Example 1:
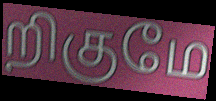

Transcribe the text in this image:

றிகுமே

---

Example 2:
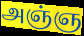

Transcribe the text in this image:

அஞ்ஞ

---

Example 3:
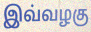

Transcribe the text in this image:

இவ்வழகு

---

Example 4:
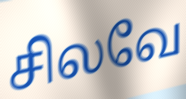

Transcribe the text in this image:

சிலவே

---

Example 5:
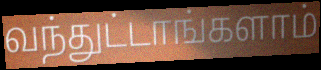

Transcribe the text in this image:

வந்துட்டாங்களாம்